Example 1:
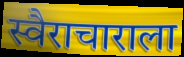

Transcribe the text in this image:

स्वैराचाराला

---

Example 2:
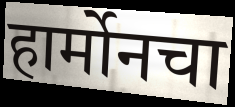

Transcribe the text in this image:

हार्मोनचा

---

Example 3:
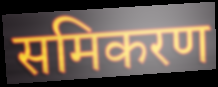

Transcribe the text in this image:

समिकरण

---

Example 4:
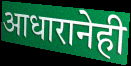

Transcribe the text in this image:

आधारानेही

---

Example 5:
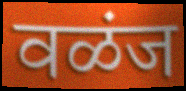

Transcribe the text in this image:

वळंज